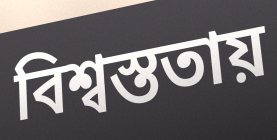
বিশ্বস্ততায়